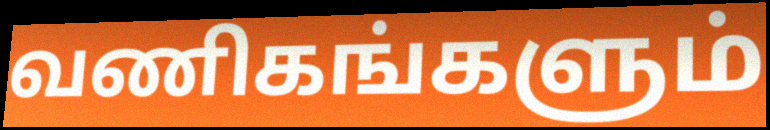
வணிகங்களும்